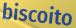
biscoito